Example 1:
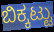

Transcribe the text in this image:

ಬಿಕ್ಕಟ್ಟು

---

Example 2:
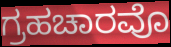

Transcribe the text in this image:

ಗ್ರಹಚಾರವೊ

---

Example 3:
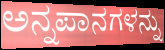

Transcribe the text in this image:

ಅನ್ನಪಾನಗಳನ್ನು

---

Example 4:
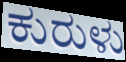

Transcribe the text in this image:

ಕುರುಳು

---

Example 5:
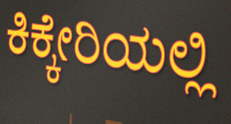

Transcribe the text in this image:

ಕಿಕ್ಕೇರಿಯಲ್ಲಿ